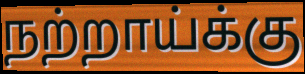
நற்றாய்க்கு